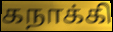
கநாக்கி